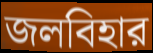
জলবিহার